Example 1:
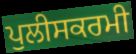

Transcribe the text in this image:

ਪੁਲੀਸਕਰਮੀ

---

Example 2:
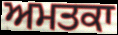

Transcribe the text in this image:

ਅਮਤਕਾ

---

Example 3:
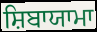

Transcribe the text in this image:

ਸ਼ਿਬਾਯਾਮਾ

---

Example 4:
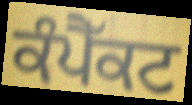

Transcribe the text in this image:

ਕੰਪੈੱਕਟ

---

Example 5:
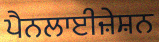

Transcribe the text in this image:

ਪੈਨਲਾਈਜ਼ੇਸ਼ਨ